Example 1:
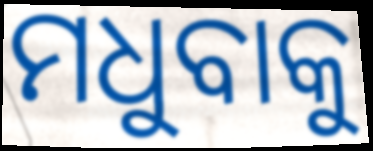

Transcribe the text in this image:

ମଧୁବାକୁ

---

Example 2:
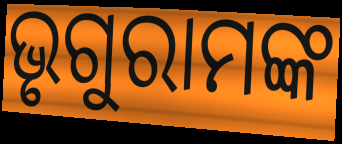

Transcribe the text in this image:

ଭୃଗୁରାମଙ୍କ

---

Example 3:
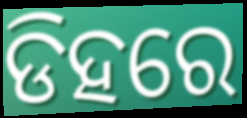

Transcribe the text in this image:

ଡିହରେ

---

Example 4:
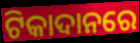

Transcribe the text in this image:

ଟିକାଦାନରେ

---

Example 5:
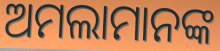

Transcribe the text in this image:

ଅମଲାମାନଙ୍କ